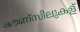
കൗണ്സിലുകള്